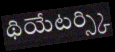
థియేటర్స్కి